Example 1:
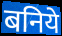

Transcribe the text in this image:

बनिये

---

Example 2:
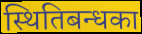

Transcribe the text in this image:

स्थितिबन्धका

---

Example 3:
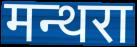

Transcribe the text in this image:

मन्थरा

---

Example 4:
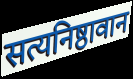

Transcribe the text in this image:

सत्यनिष्ठावान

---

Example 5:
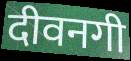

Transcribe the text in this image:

दीवनगी